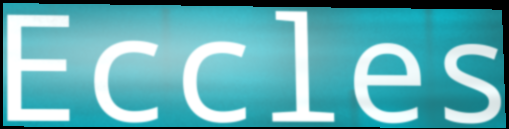
Eccles